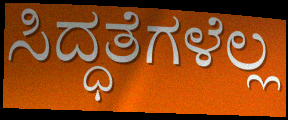
ಸಿದ್ಧತೆಗಳೆಲ್ಲ